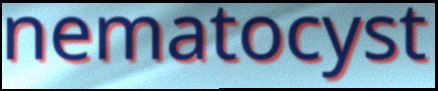
nematocyst